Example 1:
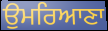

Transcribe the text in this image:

ਉਮਰਿਆਣਾ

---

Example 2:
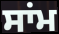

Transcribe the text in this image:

ਸਾਂਮ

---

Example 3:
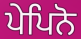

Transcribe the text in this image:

ਪੇਪਿਨੋ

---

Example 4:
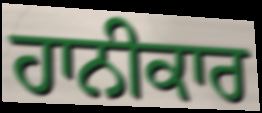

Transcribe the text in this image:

ਹਾਨੀਕਾਰ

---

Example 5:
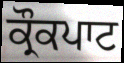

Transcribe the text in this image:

ਕ੍ਰੌਕਪਾਟ